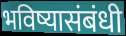
भविष्यासंबंधी